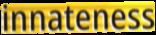
innateness